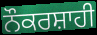
ਨੌਕਰਸ਼ਾਹੀ